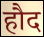
हौद